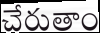
చేరుతాం